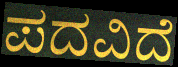
ಪದವಿದೆ